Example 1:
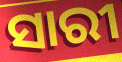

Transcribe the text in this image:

ସାରୀ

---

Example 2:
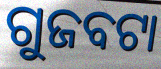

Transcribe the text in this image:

ଗୁଜବଟା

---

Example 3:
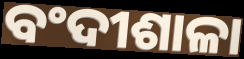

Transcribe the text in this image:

ବଂଦୀଶାଳା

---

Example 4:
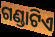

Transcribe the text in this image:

ଗଣ୍ଡାଟିଏ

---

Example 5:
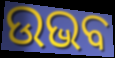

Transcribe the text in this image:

ଉଭବ